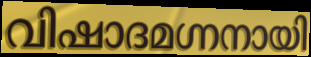
വിഷാദമഗ്നനായി